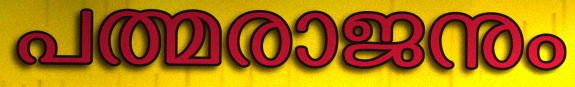
പത്മരാജനും